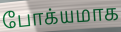
போக்யமாக